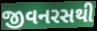
જીવનરસથી